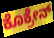
ಕೊಕ್ರೇನ್